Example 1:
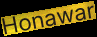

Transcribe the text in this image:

Honawar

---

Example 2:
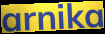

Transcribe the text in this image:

arnika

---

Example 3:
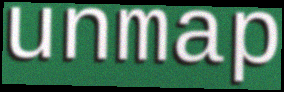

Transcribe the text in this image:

unmap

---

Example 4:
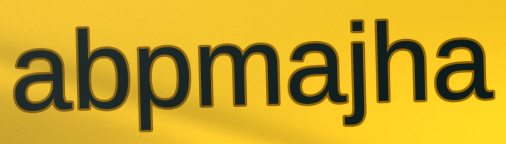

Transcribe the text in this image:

abpmajha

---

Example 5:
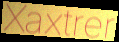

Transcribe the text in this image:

Xaxtrer